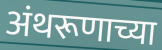
अंथरूणाच्या